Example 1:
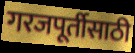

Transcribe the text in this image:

गरजपूर्तीसाठी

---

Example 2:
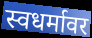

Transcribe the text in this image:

स्वधर्मावर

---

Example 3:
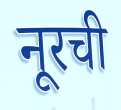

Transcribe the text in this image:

नूरची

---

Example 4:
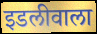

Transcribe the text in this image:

इडलीवाला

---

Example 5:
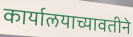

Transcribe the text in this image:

कार्यालयाच्यावतीने